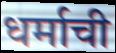
धर्माची